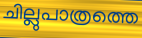
ചില്ലുപാത്രത്തെ